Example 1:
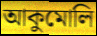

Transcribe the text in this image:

আকুমোলি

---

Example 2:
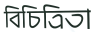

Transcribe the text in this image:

বিচিত্রিতা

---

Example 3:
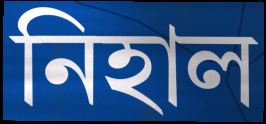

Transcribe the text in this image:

নিহাল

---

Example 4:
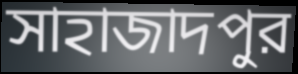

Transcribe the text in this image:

সাহাজাদপুর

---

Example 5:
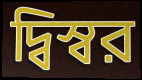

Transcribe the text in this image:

দ্বিস্বর